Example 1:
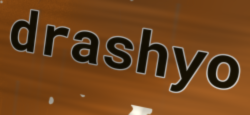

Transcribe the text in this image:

drashyo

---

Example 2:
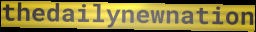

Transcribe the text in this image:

thedailynewnation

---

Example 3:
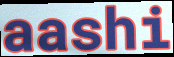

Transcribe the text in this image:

aashi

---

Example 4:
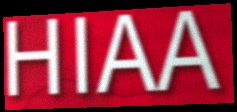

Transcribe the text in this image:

HIAA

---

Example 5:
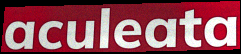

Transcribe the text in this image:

aculeata